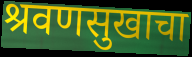
श्रवणसुखाचा